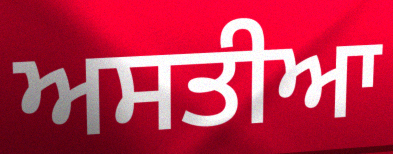
ਅਸਤੀਆ